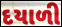
દયાળી